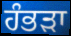
ਹੰਭੜਾ